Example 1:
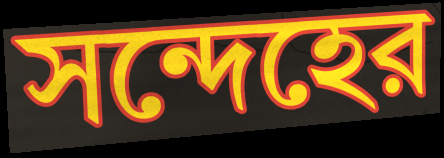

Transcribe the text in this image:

সন্দেহের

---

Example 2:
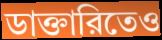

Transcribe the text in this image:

ডাক্তারিতেও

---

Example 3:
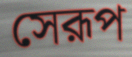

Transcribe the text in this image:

সেরূপ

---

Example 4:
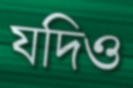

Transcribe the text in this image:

যদিও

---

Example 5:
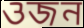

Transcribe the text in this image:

ওজন